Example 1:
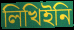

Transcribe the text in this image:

লিখিইনি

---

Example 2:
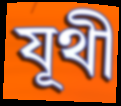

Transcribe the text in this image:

যূথী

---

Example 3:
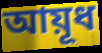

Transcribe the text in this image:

আয়ূধ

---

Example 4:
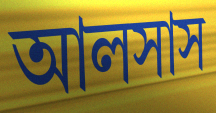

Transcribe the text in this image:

আলসাস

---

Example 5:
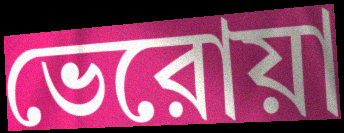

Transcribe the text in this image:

ভেরোয়া